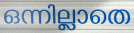
ഒന്നില്ലാതെ